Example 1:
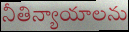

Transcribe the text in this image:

నీతిన్యాయాలను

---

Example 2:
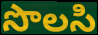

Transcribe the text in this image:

సొలసి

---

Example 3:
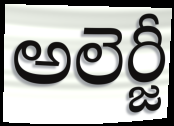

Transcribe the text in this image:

అలెర్జీ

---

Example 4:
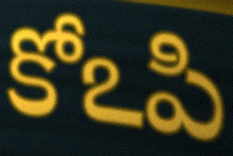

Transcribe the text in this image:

కోఽపి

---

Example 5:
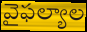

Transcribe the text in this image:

వైఫల్యాల